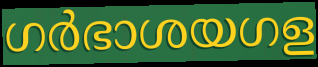
ഗർഭാശയഗള